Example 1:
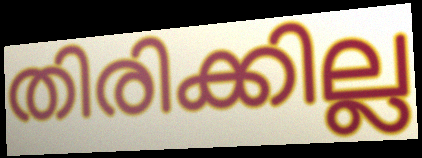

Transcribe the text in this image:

തിരിക്കില്ല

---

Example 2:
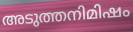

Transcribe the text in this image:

അടുത്തനിമിഷം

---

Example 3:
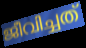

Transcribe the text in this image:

ജീവിച്ചത്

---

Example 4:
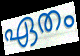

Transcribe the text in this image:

ഏതം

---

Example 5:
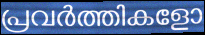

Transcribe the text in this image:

പ്രവർത്തികളോ